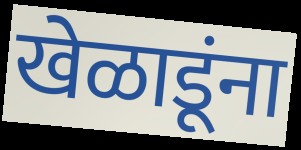
खेळाडूंना